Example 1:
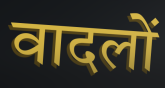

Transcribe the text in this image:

वादलों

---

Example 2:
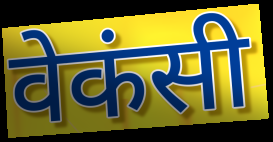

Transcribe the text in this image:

वेकंसी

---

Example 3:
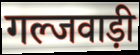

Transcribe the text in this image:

गल्जवाड़ी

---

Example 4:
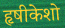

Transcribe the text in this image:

हृषीकेशो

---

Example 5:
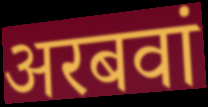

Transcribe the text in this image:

अरबवां